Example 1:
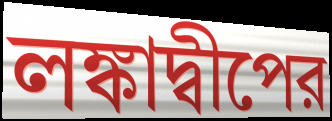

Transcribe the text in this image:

লঙ্কাদ্বীপের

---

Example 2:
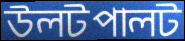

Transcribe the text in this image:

উলটপালট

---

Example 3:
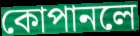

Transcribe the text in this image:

কোপানলে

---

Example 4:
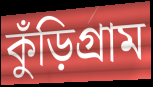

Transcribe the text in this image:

কুঁড়িগ্রাম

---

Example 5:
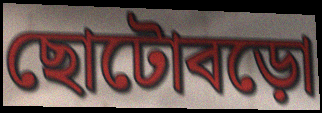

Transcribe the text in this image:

ছোটোবড়ো